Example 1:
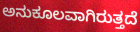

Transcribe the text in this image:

ಅನುಕೂಲವಾಗಿರುತ್ತದೆ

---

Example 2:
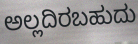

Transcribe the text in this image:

ಅಲ್ಲದಿರಬಹುದು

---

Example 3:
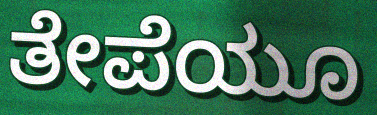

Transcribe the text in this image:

ತೇಪೆಯೂ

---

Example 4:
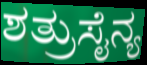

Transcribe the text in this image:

ಶತ್ರುಸೈನ್ಯ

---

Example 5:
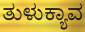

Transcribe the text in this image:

ತುಳುಕ್ಯಾವ